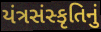
યંત્રસંસ્કૃતિનું